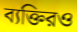
ব্যক্তিরও